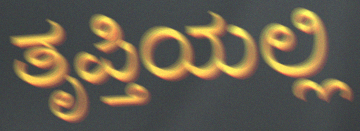
ತೃಪ್ತಿಯಲ್ಲಿ